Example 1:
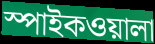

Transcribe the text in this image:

স্পাইকওয়ালা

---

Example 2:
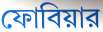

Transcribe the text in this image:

ফোবিয়ার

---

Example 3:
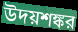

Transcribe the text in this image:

উদয়শঙ্কর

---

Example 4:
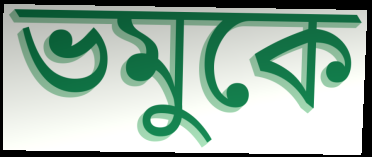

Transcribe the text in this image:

ভমুকে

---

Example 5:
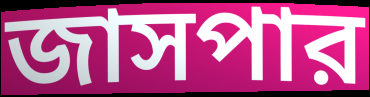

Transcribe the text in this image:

জাসপার